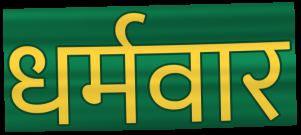
धर्मवार